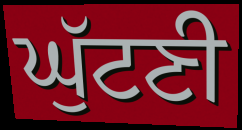
ਘੁੱਟਣੀ